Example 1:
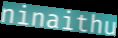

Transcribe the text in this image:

ninaithu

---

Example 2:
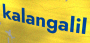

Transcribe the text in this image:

kalangalil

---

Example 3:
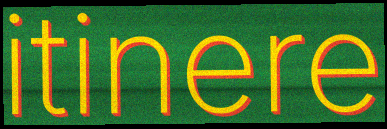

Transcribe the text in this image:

itinere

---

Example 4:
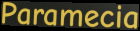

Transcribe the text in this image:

Paramecia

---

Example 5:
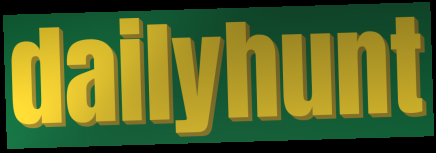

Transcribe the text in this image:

dailyhunt